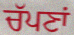
ਚੱਪਣਾਂ